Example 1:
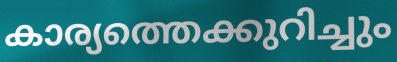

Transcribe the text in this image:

കാര്യത്തെക്കുറിച്ചും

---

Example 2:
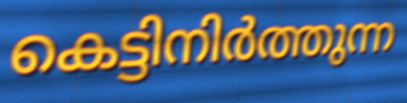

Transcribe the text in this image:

കെട്ടിനിർത്തുന്ന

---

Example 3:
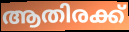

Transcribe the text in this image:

ആതിരക്ക്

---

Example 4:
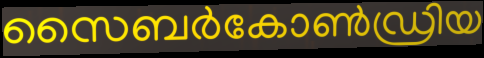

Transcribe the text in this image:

സൈബർകോൺഡ്രിയ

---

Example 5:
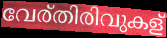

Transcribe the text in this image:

വേര്തിരിവുകള്